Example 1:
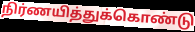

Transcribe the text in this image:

நிர்ணயித்துக்கொண்டு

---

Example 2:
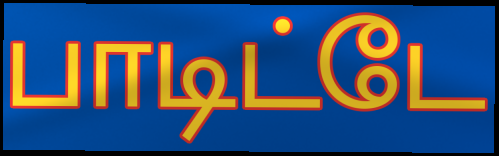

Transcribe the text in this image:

பாடிட்டே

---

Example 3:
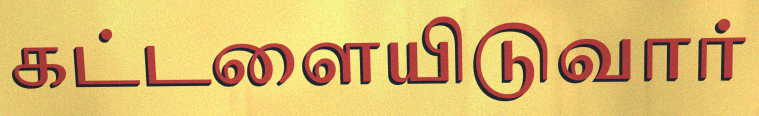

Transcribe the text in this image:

கட்டளையிடுவார்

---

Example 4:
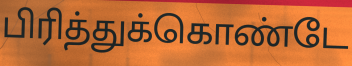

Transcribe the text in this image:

பிரித்துக்கொண்டே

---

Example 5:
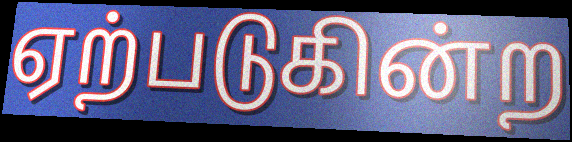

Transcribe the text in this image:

ஏற்படுகின்ற